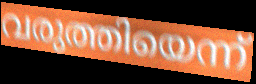
വരുത്തിയെന്ന്